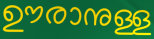
ഊരാനുള്ള